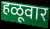
हळूवार